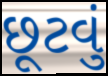
છૂટવું